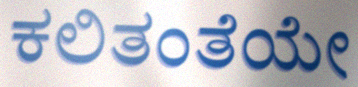
ಕಲಿತಂತೆಯೇ